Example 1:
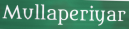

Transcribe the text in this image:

Mullaperiyar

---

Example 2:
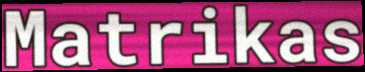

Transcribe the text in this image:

Matrikas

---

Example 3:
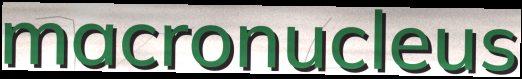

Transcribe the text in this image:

macronucleus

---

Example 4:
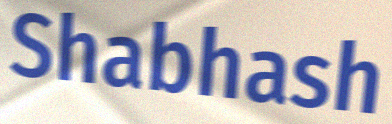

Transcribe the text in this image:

Shabhash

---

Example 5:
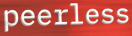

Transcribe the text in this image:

peerless